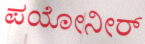
ಪಯೋನೀರ್